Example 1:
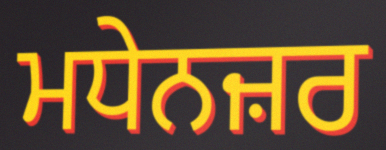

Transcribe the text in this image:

ਮਧੇਨਜ਼ਰ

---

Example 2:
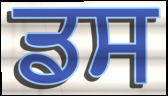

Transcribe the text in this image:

ਡਸ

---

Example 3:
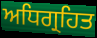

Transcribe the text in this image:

ਅਧਿਗ੍ਰਹਿਤ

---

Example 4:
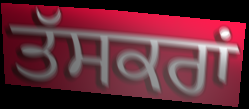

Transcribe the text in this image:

ਤੱਸਕਰਾਂ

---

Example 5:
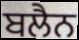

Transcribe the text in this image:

ਬਲੈਨ